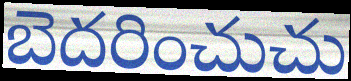
బెదరించుచు